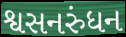
શ્વસનરુંધન